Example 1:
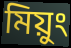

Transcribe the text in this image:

মিয়ুং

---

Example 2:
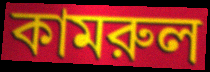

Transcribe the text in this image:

কামরুল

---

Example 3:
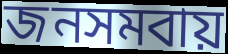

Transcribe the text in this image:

জনসমবায়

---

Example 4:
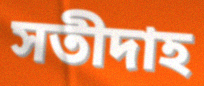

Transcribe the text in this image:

সতীদাহ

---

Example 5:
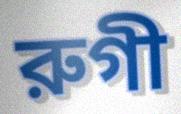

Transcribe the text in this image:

রুগী